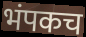
भंपकच